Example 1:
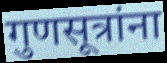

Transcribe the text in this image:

गुणसूत्रांना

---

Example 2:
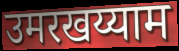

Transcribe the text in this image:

उमरखय्याम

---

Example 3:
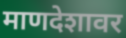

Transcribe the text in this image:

माणदेशावर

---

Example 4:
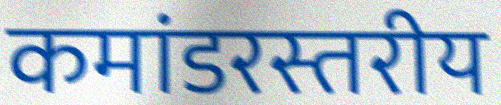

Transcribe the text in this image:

कमांडरस्तरीय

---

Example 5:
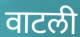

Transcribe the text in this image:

वाटली